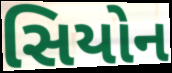
સિયોન